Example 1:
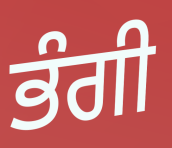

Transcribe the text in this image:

ਭੰਗੀ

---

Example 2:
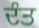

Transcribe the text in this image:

ਦੰਤ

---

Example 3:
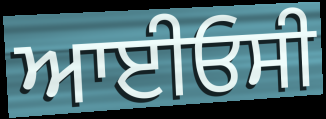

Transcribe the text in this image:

ਆਈਓਸੀ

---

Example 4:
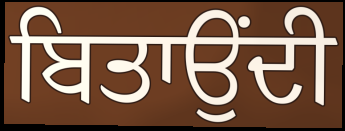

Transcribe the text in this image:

ਬਿਤਾਉਂਦੀ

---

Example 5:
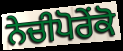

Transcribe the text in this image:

ਨੇਚੀਪੋਰੇਂਕੋ